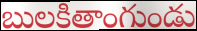
బులకితాంగుండు